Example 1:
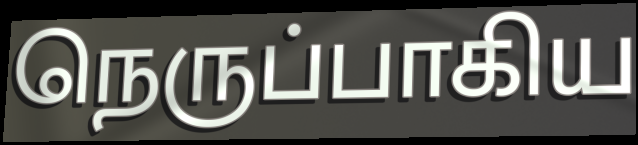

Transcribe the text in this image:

நெருப்பாகிய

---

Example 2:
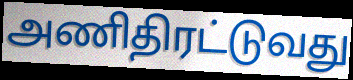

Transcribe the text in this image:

அணிதிரட்டுவது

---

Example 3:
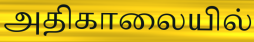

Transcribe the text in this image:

அதிகாலையில்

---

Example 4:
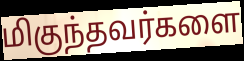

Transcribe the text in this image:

மிகுந்தவர்களை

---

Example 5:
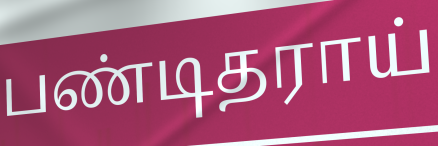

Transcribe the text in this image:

பண்டிதராய்